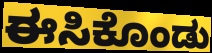
ಈಸಿಕೊಂಡು